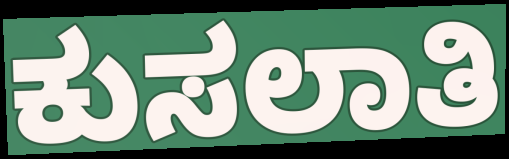
ಕುಸಲಾತಿ